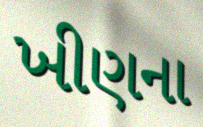
ખીણના